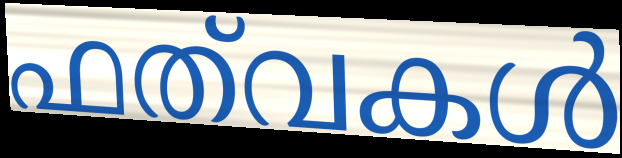
ഫത്‌വകൾ